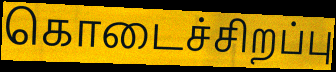
கொடைச்சிறப்பு